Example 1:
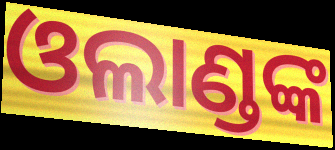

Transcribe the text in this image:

ଓଲାଣ୍ଡଙ୍କ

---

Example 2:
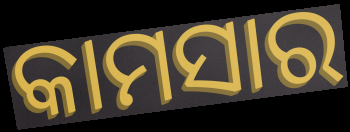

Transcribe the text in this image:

କାମସାର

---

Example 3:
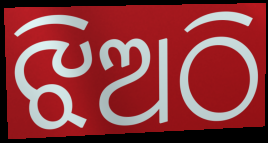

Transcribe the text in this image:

ଝିଅଠି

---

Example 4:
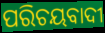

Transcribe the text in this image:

ପରିଚୟବାଦୀ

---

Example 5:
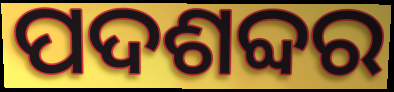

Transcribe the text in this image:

ପଦଶବ୍ଦର